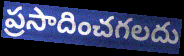
ప్రసాదించగలదు